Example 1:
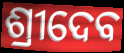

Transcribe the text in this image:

ଶ୍ରୀଦେବ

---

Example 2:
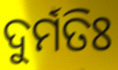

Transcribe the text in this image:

ଦୁର୍ମତିଃ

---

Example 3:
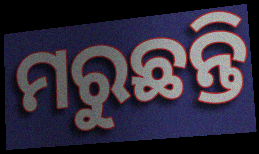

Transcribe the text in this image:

ମରୁଛନ୍ତି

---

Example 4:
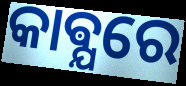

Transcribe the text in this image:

କାଵ୍ଯରେ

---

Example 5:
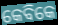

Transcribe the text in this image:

କେବିକେ